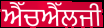
ਐੱਚਐੱਲਜੀ